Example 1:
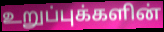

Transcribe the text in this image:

உறுப்புக்களின்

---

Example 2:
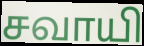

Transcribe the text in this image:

சவாயி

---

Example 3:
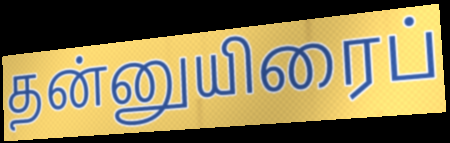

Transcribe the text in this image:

தன்னுயிரைப்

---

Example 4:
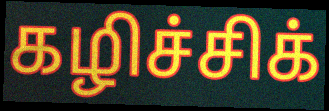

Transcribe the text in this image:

கழிச்சிக்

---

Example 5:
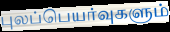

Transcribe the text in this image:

புலப்பெயர்வுகளும்